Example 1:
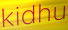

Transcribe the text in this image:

kidhu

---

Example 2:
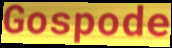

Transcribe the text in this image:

Gospode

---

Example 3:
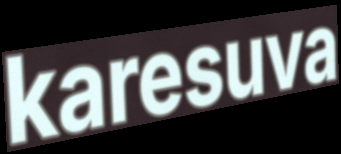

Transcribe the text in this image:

karesuva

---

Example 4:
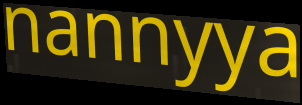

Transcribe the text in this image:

nannyya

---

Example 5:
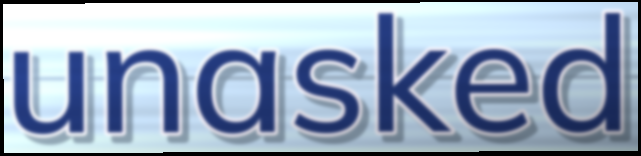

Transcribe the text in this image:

unasked